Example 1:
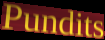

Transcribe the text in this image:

Pundits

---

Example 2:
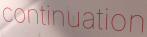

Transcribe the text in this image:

continuation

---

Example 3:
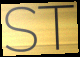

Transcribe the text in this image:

ST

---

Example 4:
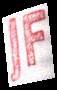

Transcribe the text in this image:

JF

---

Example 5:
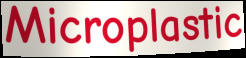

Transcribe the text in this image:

Microplastic